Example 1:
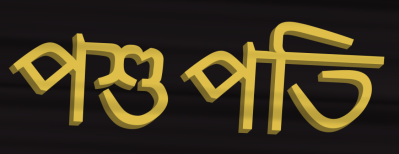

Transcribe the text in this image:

পশুপতি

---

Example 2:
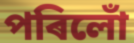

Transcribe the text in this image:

পৰিলোঁ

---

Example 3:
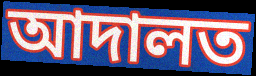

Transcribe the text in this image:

আদালত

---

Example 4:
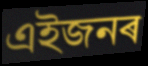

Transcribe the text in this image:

এইজনৰ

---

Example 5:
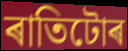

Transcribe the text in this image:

ৰাতিটোৰ